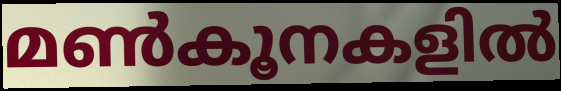
മൺകൂനകളിൽ